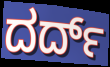
ದರ್ದ್